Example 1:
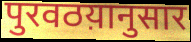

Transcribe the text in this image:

पुरवठय़ानुसार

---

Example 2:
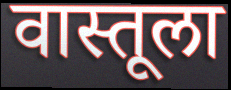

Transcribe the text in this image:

वास्तूला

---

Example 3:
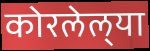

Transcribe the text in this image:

कोरलेल्या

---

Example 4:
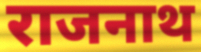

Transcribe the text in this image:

राजनाथ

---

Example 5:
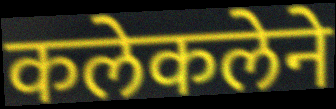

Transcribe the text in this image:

कलेकलेने